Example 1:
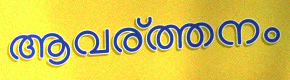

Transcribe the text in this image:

ആവര്ത്തനം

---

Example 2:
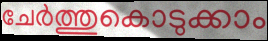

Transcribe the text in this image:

ചേർത്തുകൊടുക്കാം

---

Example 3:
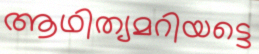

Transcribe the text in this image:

ആഥിത്യമറിയട്ടെ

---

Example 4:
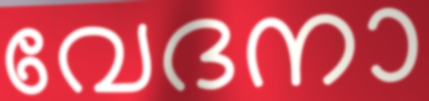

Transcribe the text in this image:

വേദനാ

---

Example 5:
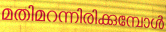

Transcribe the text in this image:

മതിമറന്നിരിക്കുമ്പോൾ